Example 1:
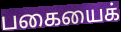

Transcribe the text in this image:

பகையைக்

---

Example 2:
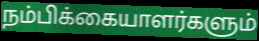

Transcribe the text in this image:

நம்பிக்கையாளர்களும்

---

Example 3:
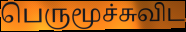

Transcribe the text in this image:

பெருமூச்சுவிட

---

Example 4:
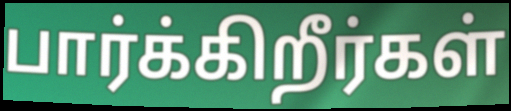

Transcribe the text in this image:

பார்க்கிறீர்கள்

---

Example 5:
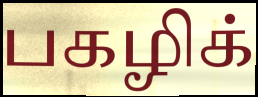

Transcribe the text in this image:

பகழிக்